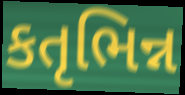
કતૃભિન્ન